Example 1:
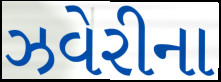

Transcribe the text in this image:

ઝવેરીના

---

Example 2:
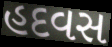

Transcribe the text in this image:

હદવસ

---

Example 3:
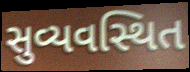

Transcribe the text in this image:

સુવ્યવસ્થિત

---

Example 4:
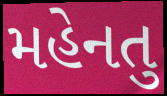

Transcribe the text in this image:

મહેનતુ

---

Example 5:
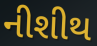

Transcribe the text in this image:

નીશીથ